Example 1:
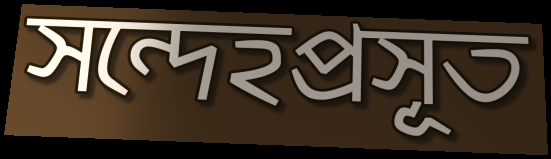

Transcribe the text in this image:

সন্দেহপ্রসূত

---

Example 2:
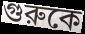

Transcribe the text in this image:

গুরুকে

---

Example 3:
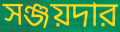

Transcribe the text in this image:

সঞ্জয়দার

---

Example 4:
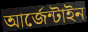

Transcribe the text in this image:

আর্জেন্টাইন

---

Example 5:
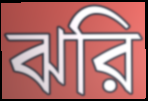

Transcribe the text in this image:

ঝরি